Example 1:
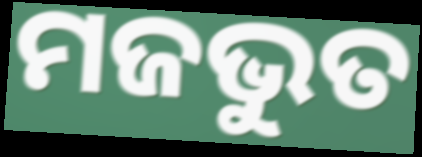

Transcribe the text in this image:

ମଜଭୁତ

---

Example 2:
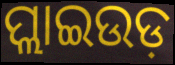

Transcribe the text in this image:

ପ୍ଲାଇଉଡ଼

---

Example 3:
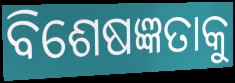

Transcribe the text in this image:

ବିଶେଷଜ୍ଞତାକୁ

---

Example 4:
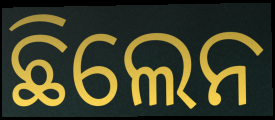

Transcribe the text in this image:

ଛିଲେନ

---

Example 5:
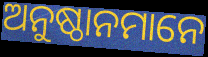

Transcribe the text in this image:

ଅନୁଷ୍ଠାନମାନେ